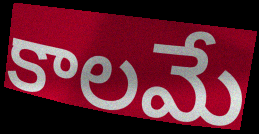
కాలమే